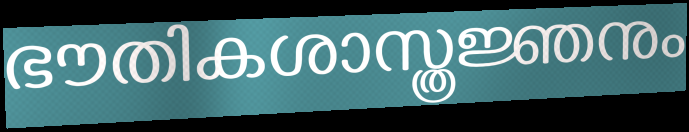
ഭൗതികശാസ്ത്രജ്ഞനും